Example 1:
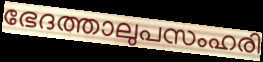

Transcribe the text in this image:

ഭേദത്താലുപസംഹരി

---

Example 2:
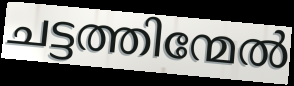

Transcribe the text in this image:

ചട്ടത്തിന്മേൽ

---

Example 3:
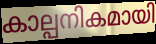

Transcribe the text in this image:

കാല്പനികമായി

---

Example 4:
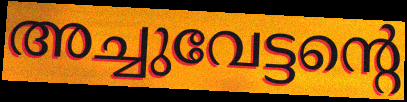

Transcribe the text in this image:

അച്ചുവേട്ടന്റെ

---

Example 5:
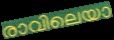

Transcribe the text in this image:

രാവിലെയാ